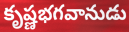
కృష్ణభగవానుడు